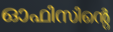
ഓഫിസിന്റെ